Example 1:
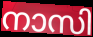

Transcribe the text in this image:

നാസി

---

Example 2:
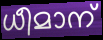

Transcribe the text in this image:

ധീമാന്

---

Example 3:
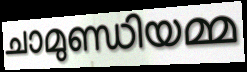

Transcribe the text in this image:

ചാമുണ്ഡിയമ്മ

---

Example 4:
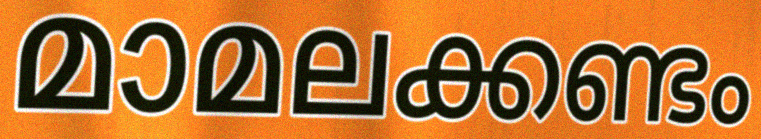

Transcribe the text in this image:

മാമലക്കണ്ടം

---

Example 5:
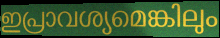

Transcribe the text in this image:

ഇപ്രാവശ്യമെങ്കിലും